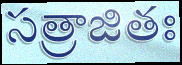
సత్రాజితః